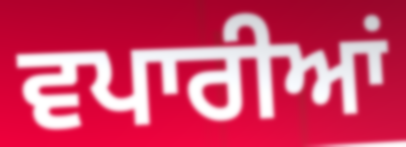
ਵਪਾਰੀਆਂ